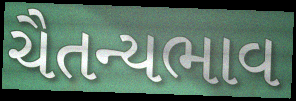
ચૈતન્યભાવ